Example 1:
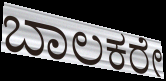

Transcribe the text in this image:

ಬಾಲಕರೇ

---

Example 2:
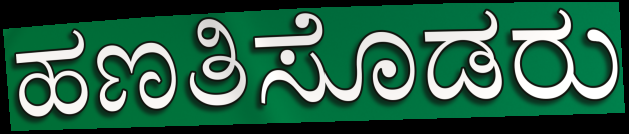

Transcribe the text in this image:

ಹಣತಿಸೊಡರು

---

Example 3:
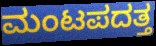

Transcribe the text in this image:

ಮಂಟಪದತ್ತ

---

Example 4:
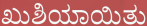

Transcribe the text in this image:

ಖುಶಿಯಾಯಿತು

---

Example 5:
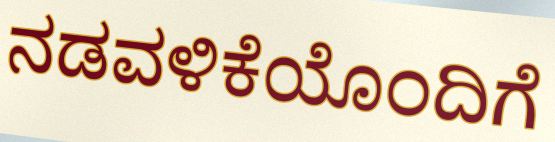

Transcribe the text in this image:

ನಡವಳಿಕೆಯೊಂದಿಗೆ